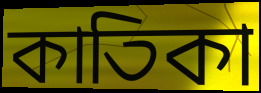
কাতিকা